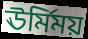
ঊর্মিময়